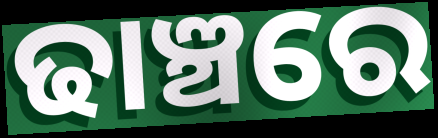
ଢାଞ୍ଚରେ